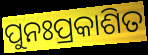
ପୁନଃପ୍ରକାଶିତ